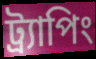
ট্র্যাপিং